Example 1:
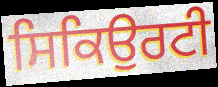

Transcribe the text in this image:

ਸਿਕਿਉਰਟੀ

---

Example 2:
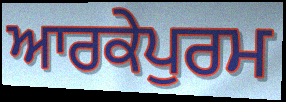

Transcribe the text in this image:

ਆਰਕੇਪੁਰਮ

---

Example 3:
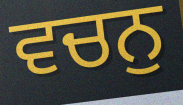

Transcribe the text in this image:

ਵਚਨੁ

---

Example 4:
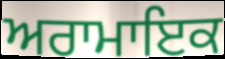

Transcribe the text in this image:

ਅਰਾਮਾਇਕ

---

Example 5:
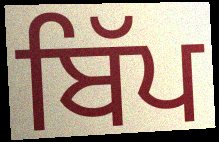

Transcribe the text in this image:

ਬਿੱਪ